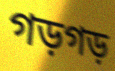
গড়গড়